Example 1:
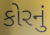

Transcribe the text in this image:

કોરનું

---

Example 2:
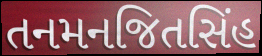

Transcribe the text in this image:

તનમનજિતસિંહ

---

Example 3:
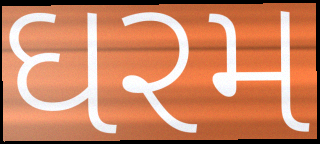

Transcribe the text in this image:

ઘરમ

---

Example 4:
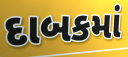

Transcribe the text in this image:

દાબકમાં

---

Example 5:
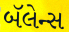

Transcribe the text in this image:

બૅલેન્સ